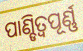
ପାଣ୍ଡିତ୍ୱପୂର୍ଣ୍ଣ